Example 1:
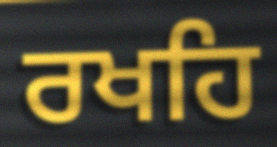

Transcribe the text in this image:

ਰਖਹਿ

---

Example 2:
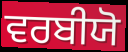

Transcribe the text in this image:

ਵਰਬੀਯੋ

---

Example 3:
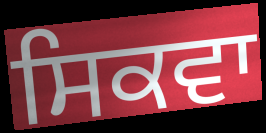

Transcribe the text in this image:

ਸਿਕਵਾ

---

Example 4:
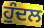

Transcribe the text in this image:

ਹੁੰਦਲ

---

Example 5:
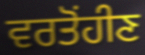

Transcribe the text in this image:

ਵਰਤੋਂਹੀਣ